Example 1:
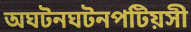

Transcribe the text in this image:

অঘটনঘটনপটিয়সী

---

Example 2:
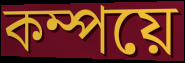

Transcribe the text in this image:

কম্পয়ে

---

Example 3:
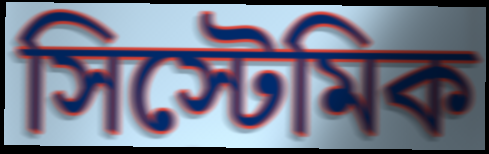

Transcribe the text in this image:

সিস্টেমিক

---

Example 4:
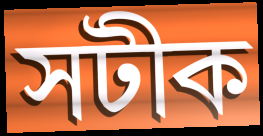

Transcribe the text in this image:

সটীক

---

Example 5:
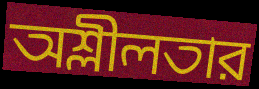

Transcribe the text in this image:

অশ্লীলতার